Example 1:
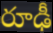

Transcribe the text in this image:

రూఢీ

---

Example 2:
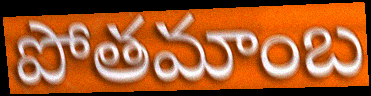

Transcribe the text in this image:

పోతమాంబ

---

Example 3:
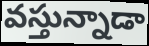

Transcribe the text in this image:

వస్తున్నాడా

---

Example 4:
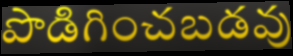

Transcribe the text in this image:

పొడిగించబడవు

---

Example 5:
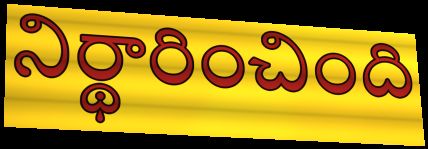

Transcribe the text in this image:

నిర్థారించింది